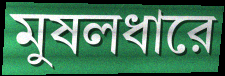
মুষলধারে